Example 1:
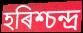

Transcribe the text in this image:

হৰিশ্চন্দ্ৰ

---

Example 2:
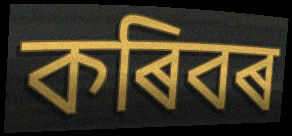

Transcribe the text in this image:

কৰিবৰ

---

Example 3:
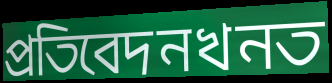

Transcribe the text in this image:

প্ৰতিবেদনখনত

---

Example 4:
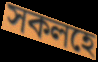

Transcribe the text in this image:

সকলহে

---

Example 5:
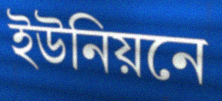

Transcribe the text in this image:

ইউনিয়নে